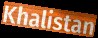
Khalistan